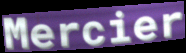
Mercier